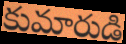
కుమారుడి